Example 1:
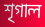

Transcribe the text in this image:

শৃগাল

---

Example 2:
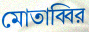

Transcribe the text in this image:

মোতাব্বির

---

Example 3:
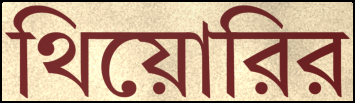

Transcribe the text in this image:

থিয়োরির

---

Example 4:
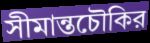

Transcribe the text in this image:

সীমান্তচৌকির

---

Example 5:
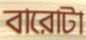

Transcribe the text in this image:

বারোটা